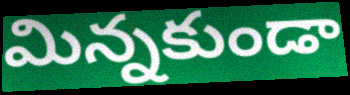
మిన్నకుండా